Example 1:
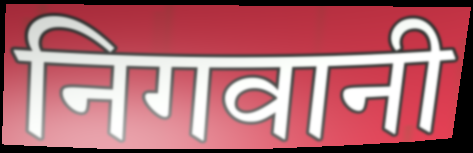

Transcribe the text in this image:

निगवानी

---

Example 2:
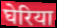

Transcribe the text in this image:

घेरिया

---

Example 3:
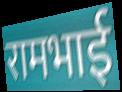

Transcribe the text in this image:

रामभाई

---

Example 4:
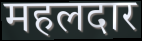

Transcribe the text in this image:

महलदार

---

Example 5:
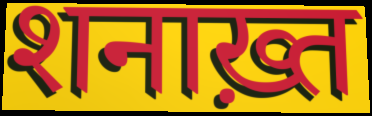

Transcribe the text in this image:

शनाख़्त